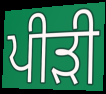
ਪੀੜੀ